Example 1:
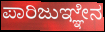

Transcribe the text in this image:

ಪಾರಿಜುಞ್ಞೇನ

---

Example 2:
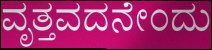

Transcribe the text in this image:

ವೃತ್ತವದನೇಂದು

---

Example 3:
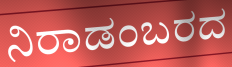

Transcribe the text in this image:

ನಿರಾಡಂಬರದ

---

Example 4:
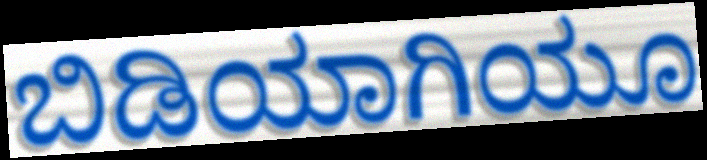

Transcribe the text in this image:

ಬಿಡಿಯಾಗಿಯೂ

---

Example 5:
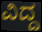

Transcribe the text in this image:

ವಿದ್ದ